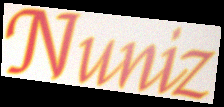
Nuniz